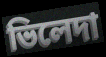
ভিলেদা